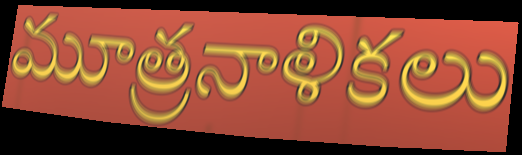
మూత్రనాళికలు